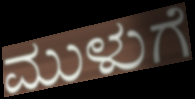
ಮುಳುಗೆ